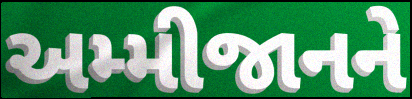
અમ્મીજાનને